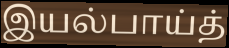
இயல்பாய்த்